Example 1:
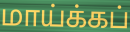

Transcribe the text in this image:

மாய்க்கப்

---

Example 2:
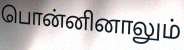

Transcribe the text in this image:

பொன்னினாலும்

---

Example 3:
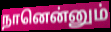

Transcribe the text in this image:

நானென்னும்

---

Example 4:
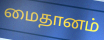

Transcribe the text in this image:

மைதானம்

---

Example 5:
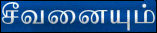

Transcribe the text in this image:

சீவனையும்